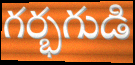
గర్భగుడి